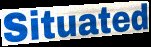
Situated